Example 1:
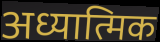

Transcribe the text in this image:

अध्यात्मिक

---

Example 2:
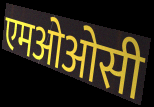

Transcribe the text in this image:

एमओओसी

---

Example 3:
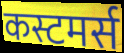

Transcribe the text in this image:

कस्‍टमर्स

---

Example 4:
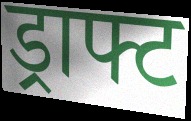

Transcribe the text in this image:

ड्राफ्ट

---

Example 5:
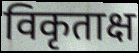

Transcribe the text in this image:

विकृताक्ष